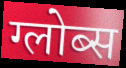
ग्लोब्स